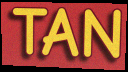
TAN